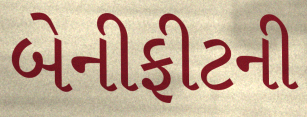
બેનીફીટની